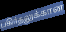
பகிர்தலுக்கான